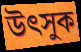
উৎসুক